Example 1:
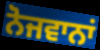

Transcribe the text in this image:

ਨੋਜਵਾਨਾਂ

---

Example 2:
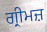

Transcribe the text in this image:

ਗ੍ਰੀਮਜ਼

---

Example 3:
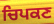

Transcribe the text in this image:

ਚਿਪਕਣ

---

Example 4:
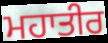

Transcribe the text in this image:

ਮਹਾਤੀਰ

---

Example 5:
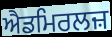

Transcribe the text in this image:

ਐਡਮਿਰਲਜ਼